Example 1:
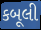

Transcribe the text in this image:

કબૂલી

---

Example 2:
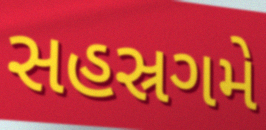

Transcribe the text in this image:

સહસ્રગમે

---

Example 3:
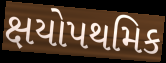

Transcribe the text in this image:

ક્ષયોપથમિક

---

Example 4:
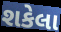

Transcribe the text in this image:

શકેલા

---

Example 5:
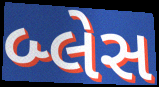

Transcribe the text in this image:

બ્લેસ